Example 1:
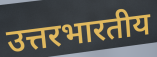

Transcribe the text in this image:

उत्तरभारतीय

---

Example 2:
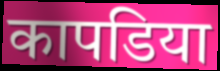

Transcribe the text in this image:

कापडिया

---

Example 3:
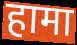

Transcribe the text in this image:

हामा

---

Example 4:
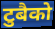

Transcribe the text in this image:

टुबैको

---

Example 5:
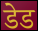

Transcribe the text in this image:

डेड